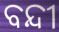
ବନ୍ଦୀ